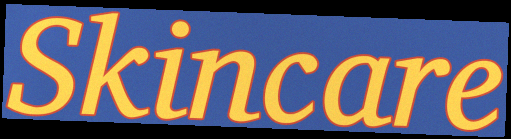
Skincare